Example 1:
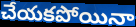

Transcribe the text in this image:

చేయకపోయినా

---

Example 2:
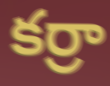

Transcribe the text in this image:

కర్రా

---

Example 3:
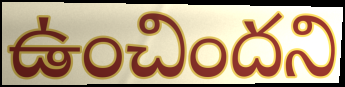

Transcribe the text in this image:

ఉంచిందని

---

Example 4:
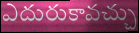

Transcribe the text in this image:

ఎదురుకావచ్చు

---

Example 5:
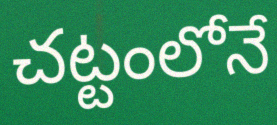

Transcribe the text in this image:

చట్టంలోనే